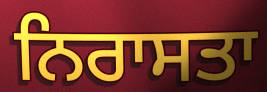
ਨਿਰਾਸਤਾ